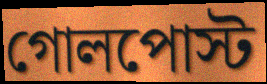
গোলপোস্ট